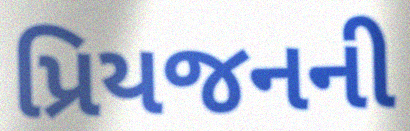
પ્રિયજનની